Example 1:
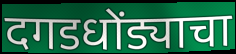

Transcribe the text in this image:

दगडधोंड्याचा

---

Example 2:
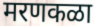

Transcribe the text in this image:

मरणकळा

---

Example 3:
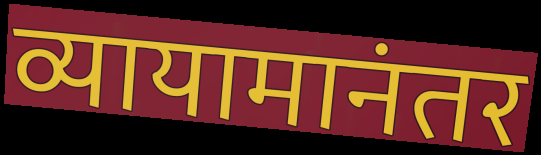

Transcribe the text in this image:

व्यायामानंतर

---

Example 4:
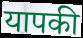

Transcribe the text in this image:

यापकी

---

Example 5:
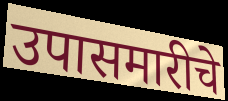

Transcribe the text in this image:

उपासमारीचे